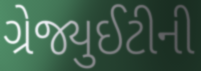
ગ્રેજ્યુઈટીની